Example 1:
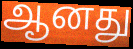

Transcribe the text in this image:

ஆனது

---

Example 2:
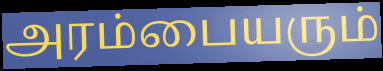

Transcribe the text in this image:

அரம்பையரும்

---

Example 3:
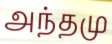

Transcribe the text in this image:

அந்தமு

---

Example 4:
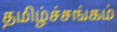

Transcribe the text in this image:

தமிழ்ச்சங்கம்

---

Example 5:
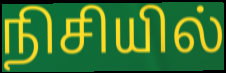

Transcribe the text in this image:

நிசியில்